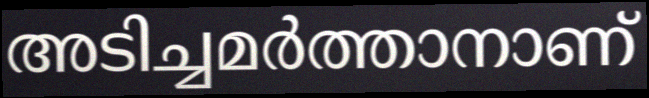
അടിച്ചമർത്താനാണ്